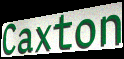
Caxton